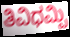
ತಿವಿಧಮ್ಪಿ